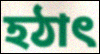
হঠাৎ